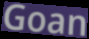
Goan